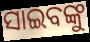
ସାଇବଙ୍କୁ